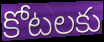
కోటలకు